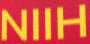
NIIH